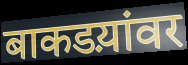
बाकडय़ांवर